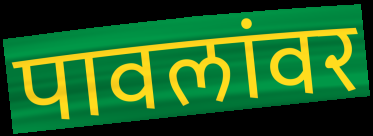
पावलांवर